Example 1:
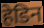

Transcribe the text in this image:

हेडिन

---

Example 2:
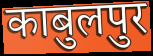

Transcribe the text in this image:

काबुलपुर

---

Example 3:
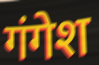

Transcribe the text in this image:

गंगेश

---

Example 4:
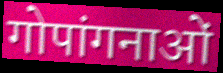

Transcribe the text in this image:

गोपांगनाओं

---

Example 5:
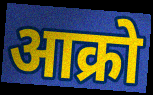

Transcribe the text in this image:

आक्रो